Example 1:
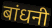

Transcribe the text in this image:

बांधनी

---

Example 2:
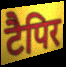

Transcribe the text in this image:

टैपिर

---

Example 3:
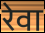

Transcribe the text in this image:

रेवा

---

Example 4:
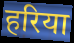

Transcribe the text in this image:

हरिया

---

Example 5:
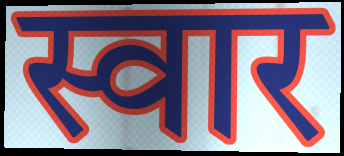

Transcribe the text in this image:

स्वार